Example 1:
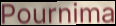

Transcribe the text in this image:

Pournima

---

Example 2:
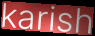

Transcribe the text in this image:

karish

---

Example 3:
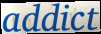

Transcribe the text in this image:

addict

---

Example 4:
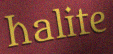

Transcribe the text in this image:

halite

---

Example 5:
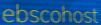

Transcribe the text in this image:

ebscohost